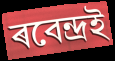
ৰবেন্দ্ৰই